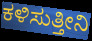
ಕಳಿಸುತ್ತೀನಿ